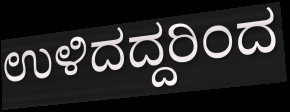
ಉಳಿದದ್ದರಿಂದ